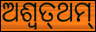
ଅଶ୍ୱତ୍‌ଥମ୍